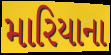
મારિયાના